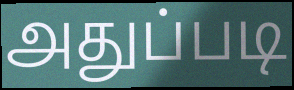
அதுப்படி